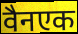
वैनएक